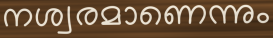
നശ്വരമാണെന്നും